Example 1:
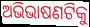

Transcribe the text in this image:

ଅଭିଭାଷଣଟିକୁ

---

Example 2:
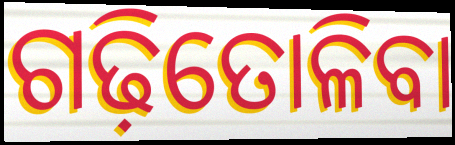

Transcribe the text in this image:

ଗଢ଼ିତୋଳିବା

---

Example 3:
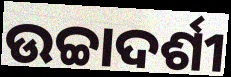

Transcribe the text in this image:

ଉଚ୍ଚାଦର୍ଶୀ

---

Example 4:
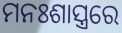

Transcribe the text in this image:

ମନଃଶାସ୍ତ୍ରରେ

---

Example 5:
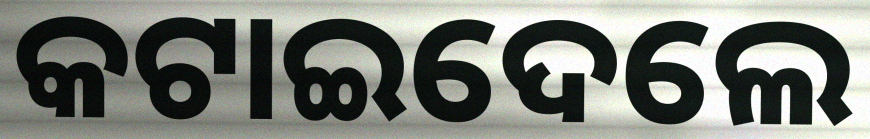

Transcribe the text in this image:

କଟାଇଦେଲେ